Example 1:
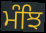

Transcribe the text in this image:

ਮੰਝਿ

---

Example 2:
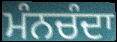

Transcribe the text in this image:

ਮੰਨਚੰਦਾ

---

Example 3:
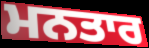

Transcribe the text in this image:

ਮਨਤਾਰ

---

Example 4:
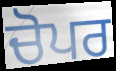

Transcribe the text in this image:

ਚੋਪਰ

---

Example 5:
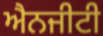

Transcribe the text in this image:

ਐਨਜੀਟੀ